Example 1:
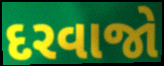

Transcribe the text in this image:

દરવાજો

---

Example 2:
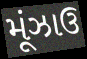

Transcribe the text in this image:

મૂંઝાઉ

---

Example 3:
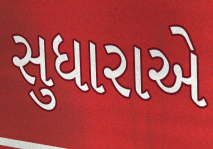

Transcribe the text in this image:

સુધારાએ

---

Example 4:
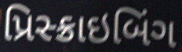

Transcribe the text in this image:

પ્રિસ્ક્રાઇબિંગ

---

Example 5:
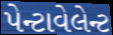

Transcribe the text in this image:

પેન્ટાવેલેન્ટ